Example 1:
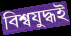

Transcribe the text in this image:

বিশ্বযুদ্ধই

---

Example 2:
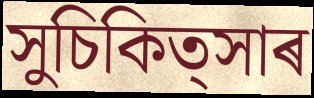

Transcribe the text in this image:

সুচিকিত্সাৰ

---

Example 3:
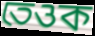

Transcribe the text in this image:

তেওক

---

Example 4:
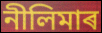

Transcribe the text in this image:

নীলিমাৰ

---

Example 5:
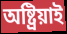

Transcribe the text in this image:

অষ্ট্ৰিয়াই